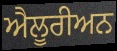
ਐਲੂਰੀਅਨ